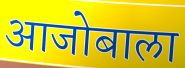
आजोबाला